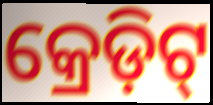
କ୍ରେଡ଼ିଟ୍